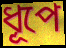
ধূপে